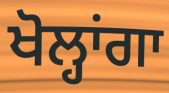
ਖੋਲ੍ਹਾਂਗਾ